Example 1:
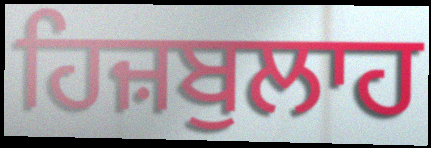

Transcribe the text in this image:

ਹਿਜ਼ਬੁਲਾਹ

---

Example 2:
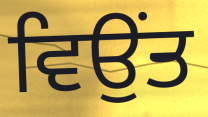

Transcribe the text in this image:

ਵਿਉਂਤ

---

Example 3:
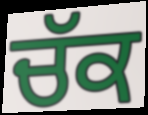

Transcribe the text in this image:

ਚੱਕ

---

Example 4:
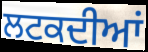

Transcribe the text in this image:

ਲਟਕਦੀਆਂ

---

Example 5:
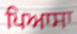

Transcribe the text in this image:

ਪਿਆਸਾ